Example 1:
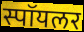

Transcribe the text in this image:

स्पॉयलर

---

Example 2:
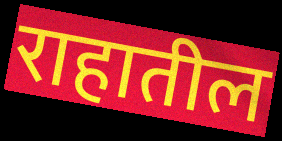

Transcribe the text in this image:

राहातील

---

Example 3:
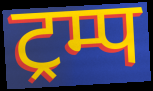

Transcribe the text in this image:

ट्रम्प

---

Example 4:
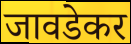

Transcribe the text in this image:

जावडेकर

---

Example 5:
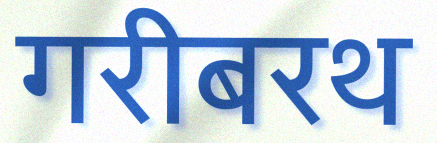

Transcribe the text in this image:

गरीबरथ